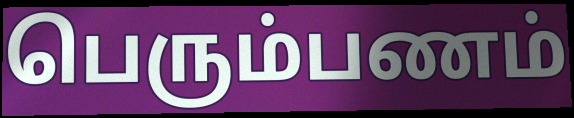
பெரும்பணம்